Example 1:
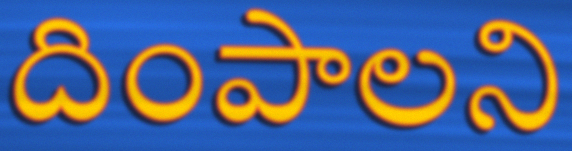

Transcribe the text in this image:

దింపాలని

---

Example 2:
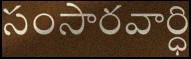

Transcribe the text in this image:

సంసారవార్ధి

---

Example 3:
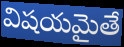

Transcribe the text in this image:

విషయమైతే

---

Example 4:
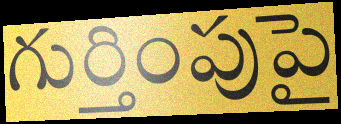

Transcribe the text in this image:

గుర్తింపుపై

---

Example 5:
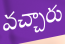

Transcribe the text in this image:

వచ్చారు